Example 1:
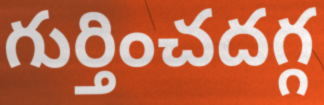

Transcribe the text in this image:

గుర్తించదగ్గ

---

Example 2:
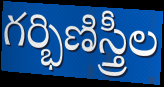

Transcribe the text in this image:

గర్భిణిస్త్రీల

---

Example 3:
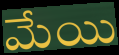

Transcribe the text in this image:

మేయి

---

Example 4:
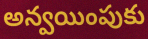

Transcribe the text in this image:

అన్వయింపుకు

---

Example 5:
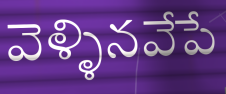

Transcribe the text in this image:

వెళ్ళినవేపే